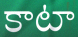
కాటా